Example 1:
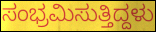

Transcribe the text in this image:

ಸಂಭ್ರಮಿಸುತ್ತಿದ್ದಳು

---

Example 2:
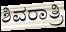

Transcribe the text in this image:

ಶಿವರಾತ್ರಿ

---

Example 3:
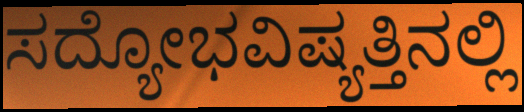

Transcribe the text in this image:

ಸದ್ಯೋಭವಿಷ್ಯತ್ತಿನಲ್ಲಿ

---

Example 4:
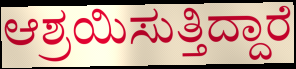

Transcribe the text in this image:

ಆಶ್ರಯಿಸುತ್ತಿದ್ದಾರೆ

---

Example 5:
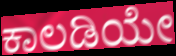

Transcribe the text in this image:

ಕಾಲಡಿಯೇ